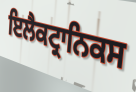
ਇਲੈਕਟ੍ਰਾਨਿਕਸ